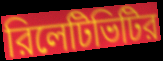
রিলেটিভিটির